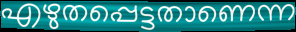
എഴുതപ്പെട്ടതാണെന്ന